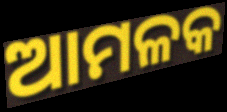
ଆମଳକ